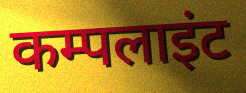
कम्पलाइंट